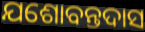
ଯଶୋବନ୍ତଦାସ